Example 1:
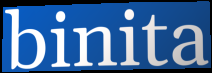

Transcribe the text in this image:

binita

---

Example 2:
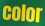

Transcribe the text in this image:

color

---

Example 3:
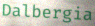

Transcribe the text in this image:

Dalbergia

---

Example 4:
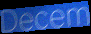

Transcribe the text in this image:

Decem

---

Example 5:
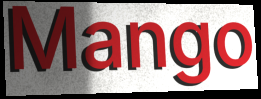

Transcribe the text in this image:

Mango